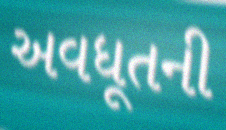
અવધૂતની